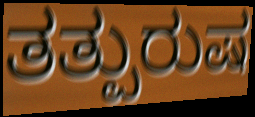
ತತ್ಪುರುಷ